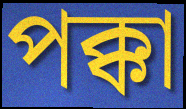
পক্কা